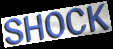
SHOCK